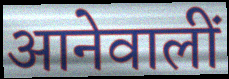
आनेवालीं